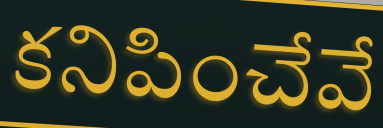
కనిపించేవే